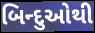
બિન્દુઓથી